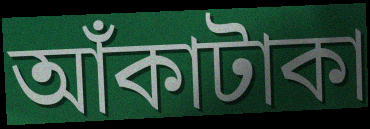
আঁকাটাকা